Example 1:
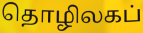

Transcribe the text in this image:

தொழிலகப்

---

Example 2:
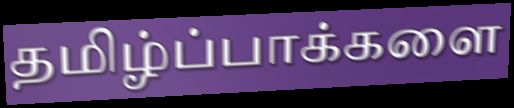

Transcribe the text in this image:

தமிழ்ப்பாக்களை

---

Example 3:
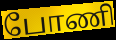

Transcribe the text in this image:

போணி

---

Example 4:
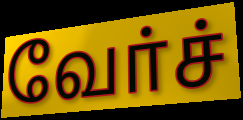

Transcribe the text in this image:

வேர்ச்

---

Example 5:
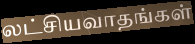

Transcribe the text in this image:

லட்சியவாதங்கள்